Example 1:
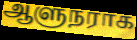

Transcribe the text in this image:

ஆளுநராக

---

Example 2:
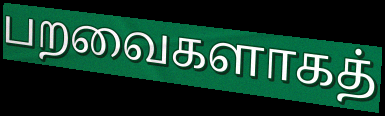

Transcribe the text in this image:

பறவைகளாகத்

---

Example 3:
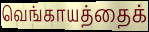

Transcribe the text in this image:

வெங்காயத்தைக்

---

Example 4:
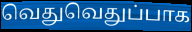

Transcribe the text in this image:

வெதுவெதுப்பாக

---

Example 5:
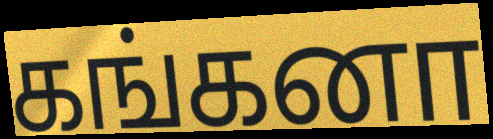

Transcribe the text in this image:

கங்கனா